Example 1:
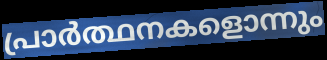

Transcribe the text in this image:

പ്രാർത്ഥനകളൊന്നും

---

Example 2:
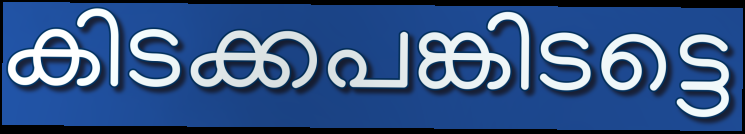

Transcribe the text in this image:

കിടക്കപങ്കിടട്ടെ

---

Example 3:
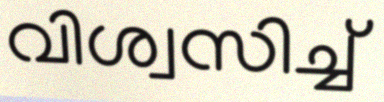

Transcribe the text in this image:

വിശ്വസിച്ച്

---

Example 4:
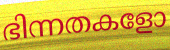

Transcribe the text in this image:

ഭിന്നതകളോ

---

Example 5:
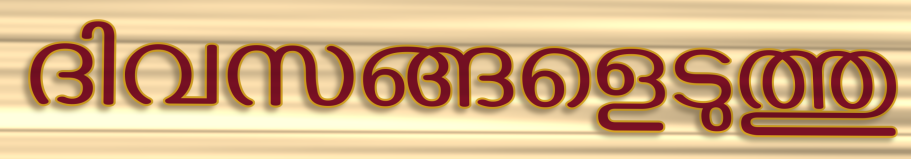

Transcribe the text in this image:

ദിവസങ്ങളെടുത്തു